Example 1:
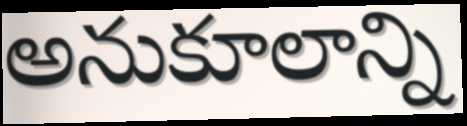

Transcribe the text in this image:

అనుకూలాన్ని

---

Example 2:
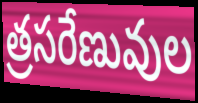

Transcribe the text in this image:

త్రసరేణువుల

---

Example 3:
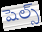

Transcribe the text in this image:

షెల్స్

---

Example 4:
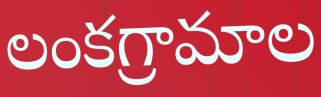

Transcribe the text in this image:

లంకగ్రామాల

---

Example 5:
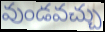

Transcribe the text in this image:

వుండవచ్చు